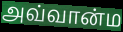
அவ்வான்ம